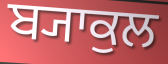
ਬ੍ਯਾਕੁਲ